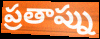
ప్రతాప్ను